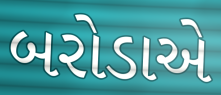
બરોડાએ